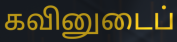
கவினுடைப்